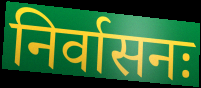
निर्वासनः